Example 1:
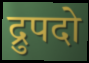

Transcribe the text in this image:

द्रुपदो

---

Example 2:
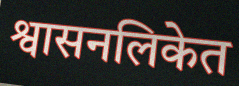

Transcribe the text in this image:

श्वासनलिकेत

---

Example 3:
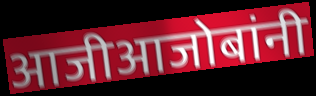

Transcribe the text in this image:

आजीआजोबांनी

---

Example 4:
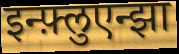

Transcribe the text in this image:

इन्फ़्लुएन्झा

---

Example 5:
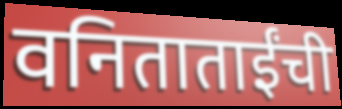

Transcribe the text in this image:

वनिताताईंची